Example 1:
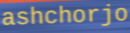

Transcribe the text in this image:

ashchorjo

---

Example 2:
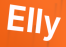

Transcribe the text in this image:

Elly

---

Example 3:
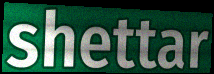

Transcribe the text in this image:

shettar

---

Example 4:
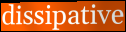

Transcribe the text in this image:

dissipative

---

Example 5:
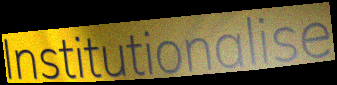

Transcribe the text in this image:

Institutionalise